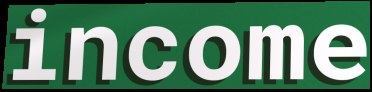
income